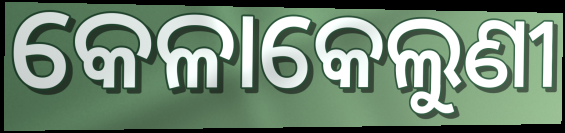
କେଳାକେଲୁଣୀ